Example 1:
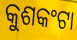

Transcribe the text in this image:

କୁଶକଂଟା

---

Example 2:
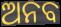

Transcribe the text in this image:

ଅନବ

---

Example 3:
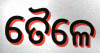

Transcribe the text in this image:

ତୈଳେ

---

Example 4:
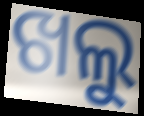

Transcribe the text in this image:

ଖଲୁ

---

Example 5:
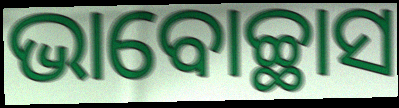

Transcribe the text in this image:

ଭାବୋଚ୍ଛାସ